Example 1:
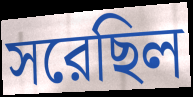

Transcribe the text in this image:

সরেছিল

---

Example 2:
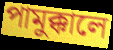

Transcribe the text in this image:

পামুক্কালে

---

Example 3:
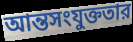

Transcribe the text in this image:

আন্তসংযুক্ততার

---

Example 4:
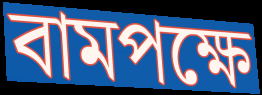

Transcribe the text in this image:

বামপক্ষে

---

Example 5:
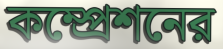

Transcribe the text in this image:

কম্প্রেশনের